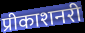
प्रीकाशनरी